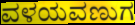
ವಳಯವಣುಗ